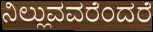
ನಿಲ್ಲುವವರೆಂದರೆ